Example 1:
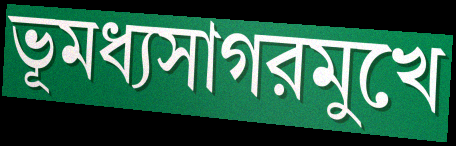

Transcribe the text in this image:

ভূমধ্যসাগরমুখে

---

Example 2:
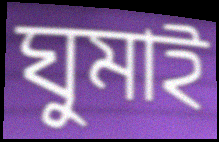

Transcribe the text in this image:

ঘুমাই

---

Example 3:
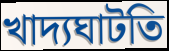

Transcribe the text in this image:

খাদ্যঘাটতি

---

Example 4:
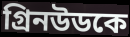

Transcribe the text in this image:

গ্রিনউডকে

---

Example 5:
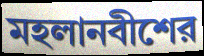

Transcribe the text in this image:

মহলানবীশের